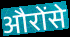
औरोंसे